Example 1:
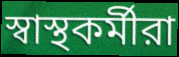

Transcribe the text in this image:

স্বাস্থকর্মীরা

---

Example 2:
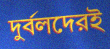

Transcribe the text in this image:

দুর্বলদেরই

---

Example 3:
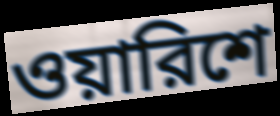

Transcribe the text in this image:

ওয়ারিশে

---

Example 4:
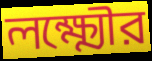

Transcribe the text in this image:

লক্ষ্মৌর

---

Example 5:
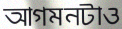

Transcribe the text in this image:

আগমনটাও